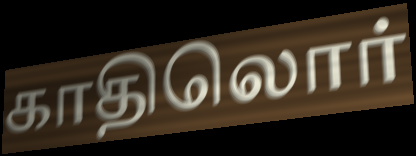
காதிலொர்